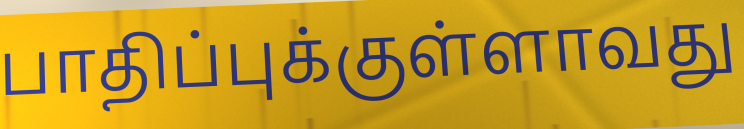
பாதிப்புக்குள்ளாவது